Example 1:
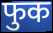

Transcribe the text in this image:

फुक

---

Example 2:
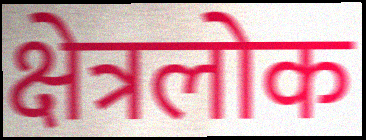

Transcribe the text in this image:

क्षेत्रलोक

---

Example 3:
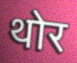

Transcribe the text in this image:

थोर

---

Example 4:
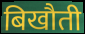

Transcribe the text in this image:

बिखौती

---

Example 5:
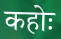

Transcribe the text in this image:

कहोः